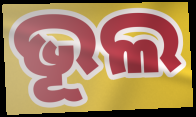
ଭୂଲ